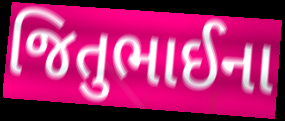
જિતુભાઈના